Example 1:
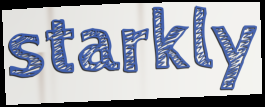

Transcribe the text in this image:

starkly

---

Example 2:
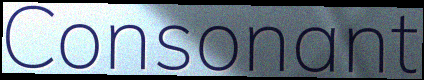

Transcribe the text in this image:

Consonant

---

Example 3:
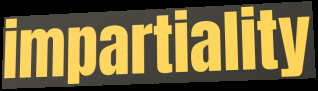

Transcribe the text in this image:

impartiality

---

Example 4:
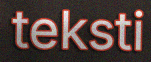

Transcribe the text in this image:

teksti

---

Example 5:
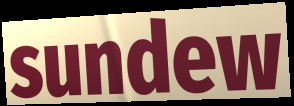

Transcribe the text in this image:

sundew